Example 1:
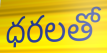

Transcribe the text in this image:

ధరలతో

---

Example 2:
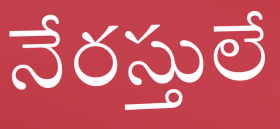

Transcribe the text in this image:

నేరస్తులే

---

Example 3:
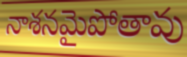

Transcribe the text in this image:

నాశనమైపోతావు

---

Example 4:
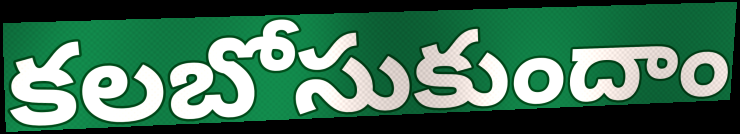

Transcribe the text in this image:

కలబోసుకుందాం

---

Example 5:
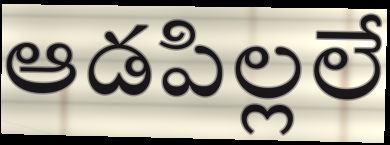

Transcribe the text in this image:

ఆడపిల్లలే